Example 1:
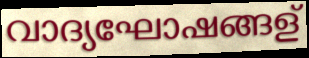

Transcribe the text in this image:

വാദ്യഘോഷങ്ങള്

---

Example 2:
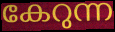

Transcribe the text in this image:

കേറുന്ന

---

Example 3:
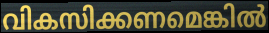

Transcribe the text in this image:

വികസിക്കണമെങ്കിൽ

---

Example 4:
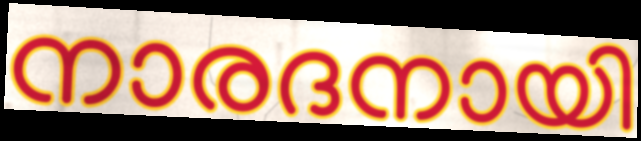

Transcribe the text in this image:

നാരദനായി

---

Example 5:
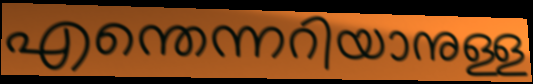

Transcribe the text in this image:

എന്തെന്നറിയാനുള്ള